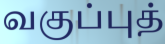
வகுப்புத்